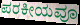
ಪರಕೀಯವೂ